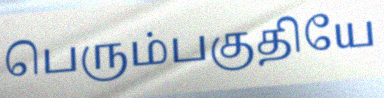
பெரும்பகுதியே